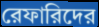
রেফারিদের